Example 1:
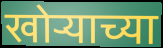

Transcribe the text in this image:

खोऱ्याच्या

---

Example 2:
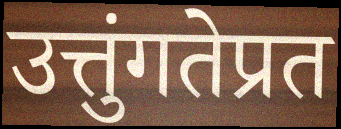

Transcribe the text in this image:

उत्तुंगतेप्रत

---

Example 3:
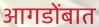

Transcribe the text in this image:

आगडोंबात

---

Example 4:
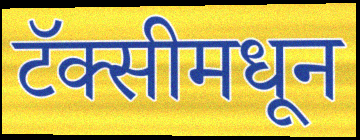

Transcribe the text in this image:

टॅक्सीमधून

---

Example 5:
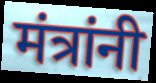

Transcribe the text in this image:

मंत्रांनी